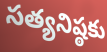
సత్యనిష్ఠకు